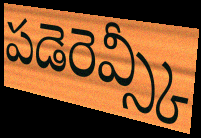
పడెరెవ్స్కీ